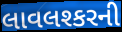
લાવલશ્કરની